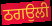
ਠਗਉਲੀ